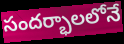
సందర్భాలలోనే